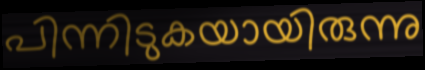
പിന്നിടുകയായിരുന്നു